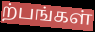
ற்பங்கள்